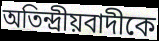
অতিন্দ্রীয়বাদীকে